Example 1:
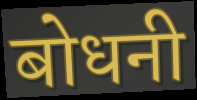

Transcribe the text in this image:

बोधनी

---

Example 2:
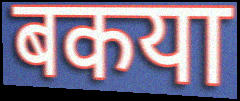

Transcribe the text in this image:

बकया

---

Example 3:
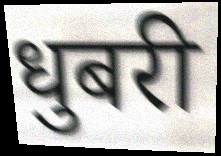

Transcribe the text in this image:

धुबरी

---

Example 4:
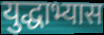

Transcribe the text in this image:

युद्धाभ्यास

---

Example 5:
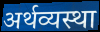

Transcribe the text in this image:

अर्थव्यस्था